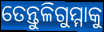
ତେନ୍ତୁଳିଗୁମ୍ମାକୁ